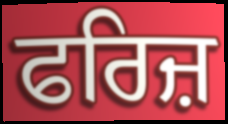
ਫਰਿਜ਼